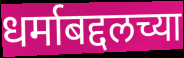
धर्माबद्दलच्या